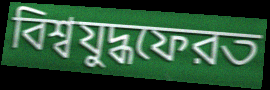
বিশ্বযুদ্ধফেরত